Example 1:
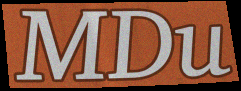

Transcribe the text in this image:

MDu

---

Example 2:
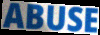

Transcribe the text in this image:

ABUSE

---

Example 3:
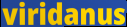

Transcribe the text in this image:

viridanus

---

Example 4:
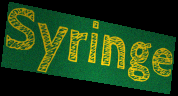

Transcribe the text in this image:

Syringe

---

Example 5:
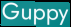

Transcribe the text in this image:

Guppy